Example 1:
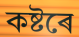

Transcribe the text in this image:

কষ্টৰে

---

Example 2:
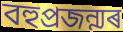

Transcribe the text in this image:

বহুপ্ৰজন্মৰ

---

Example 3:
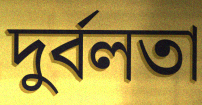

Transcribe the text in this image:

দুৰ্বলতা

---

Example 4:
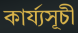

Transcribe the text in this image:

কাৰ্য্যসূচী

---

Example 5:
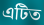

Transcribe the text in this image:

এটিত